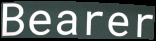
Bearer